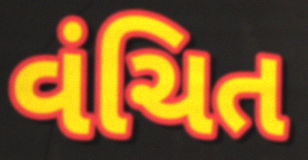
વંચિત